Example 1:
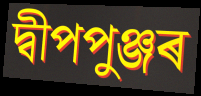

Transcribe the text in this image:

দ্বীপপুঞ্জৰ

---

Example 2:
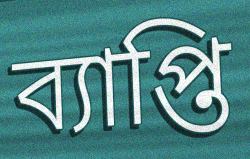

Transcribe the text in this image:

ব্যাপ্তি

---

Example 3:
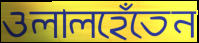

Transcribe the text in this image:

ওলালহেঁতেন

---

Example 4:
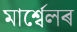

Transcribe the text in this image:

মাৰ্শ্বেলৰ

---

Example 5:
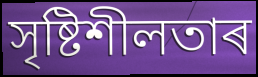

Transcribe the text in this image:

সৃষ্টিশীলতাৰ